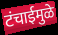
टंचाईमुळे